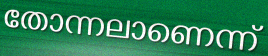
തോന്നലാണെന്ന്